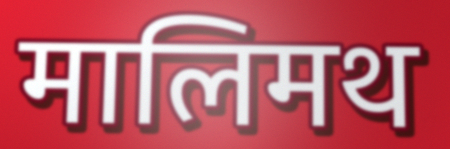
मालिमथ